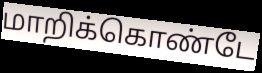
மாறிக்கொண்டே